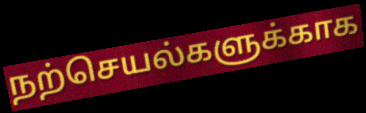
நற்செயல்களுக்காக